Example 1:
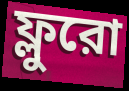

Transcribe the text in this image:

ফ্লুরো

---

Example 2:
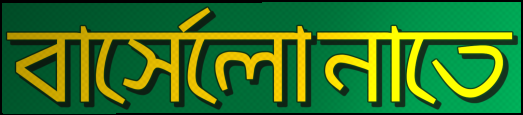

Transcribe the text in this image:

বার্সেলোনাতে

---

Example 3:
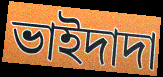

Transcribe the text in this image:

ভাইদাদা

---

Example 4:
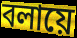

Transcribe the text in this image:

বলায়ে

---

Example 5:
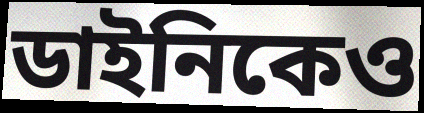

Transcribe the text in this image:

ডাইনিকেও